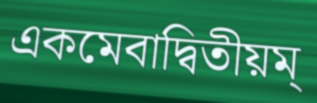
একমেবাদ্বিতীয়ম্